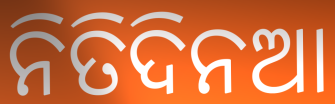
ନିତିଦିନଆ